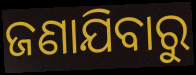
ଜଣାଯିବାରୁ